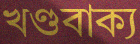
খণ্ডবাক্য